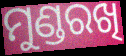
ମୁଣ୍ଡରଖି